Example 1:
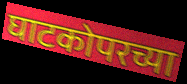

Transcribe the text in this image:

घाटकोपरच्या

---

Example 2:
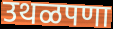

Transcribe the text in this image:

उथळपणा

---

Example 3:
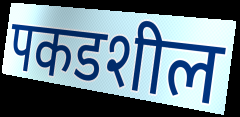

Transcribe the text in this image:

पकडशील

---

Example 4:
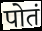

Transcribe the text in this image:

पोतं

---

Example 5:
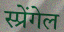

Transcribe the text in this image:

स्प्रेंगेल